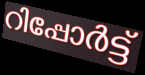
റിപ്പോർട്ട്